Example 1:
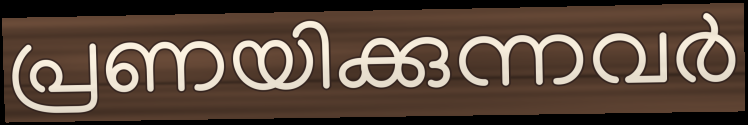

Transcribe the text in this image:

പ്രണയിക്കുന്നവർ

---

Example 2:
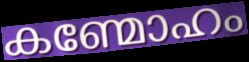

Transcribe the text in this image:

കണ്മോഹം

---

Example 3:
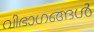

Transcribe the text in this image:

വിഭാഗങ്ങൾ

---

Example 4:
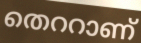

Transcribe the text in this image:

തെററാണ്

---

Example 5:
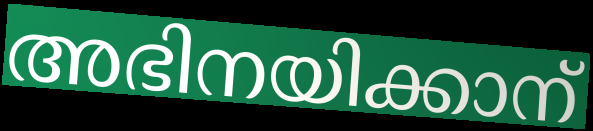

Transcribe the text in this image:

അഭിനയിക്കാന്